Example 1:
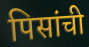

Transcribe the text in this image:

पिसांची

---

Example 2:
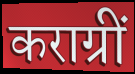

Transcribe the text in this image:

कराग्रीं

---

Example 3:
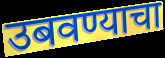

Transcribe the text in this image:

उबवण्याचा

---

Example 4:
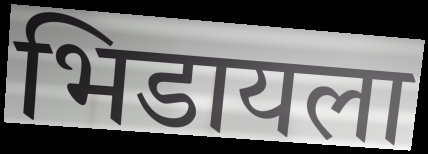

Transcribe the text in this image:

भिडायला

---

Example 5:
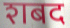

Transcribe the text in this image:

शबद